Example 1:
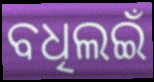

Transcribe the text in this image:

ବଧିଲଇଁ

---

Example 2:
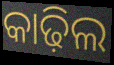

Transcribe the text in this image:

କାଢ଼ିଲ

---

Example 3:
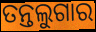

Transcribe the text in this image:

ତନ୍ତଲୁଗାର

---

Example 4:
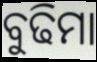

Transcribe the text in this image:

ବୁଢିମା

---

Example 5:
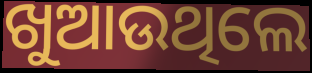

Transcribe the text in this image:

ଖୁଆଉଥିଲେ